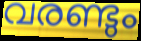
വരണ്ടും